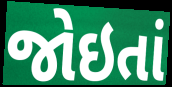
જોઇતાં